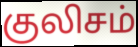
குலிசம்